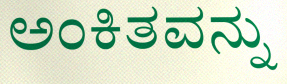
ಅಂಕಿತವನ್ನು